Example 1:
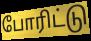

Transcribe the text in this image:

போரிட்டு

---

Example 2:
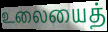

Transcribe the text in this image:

உலையைத்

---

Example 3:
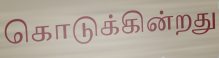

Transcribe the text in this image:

கொடுக்கின்றது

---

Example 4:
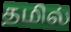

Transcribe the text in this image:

தமில்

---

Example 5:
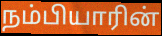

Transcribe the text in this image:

நம்பியாரின்